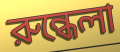
রুন্ধেলা